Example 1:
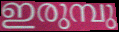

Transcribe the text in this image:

ഇരുമ്പു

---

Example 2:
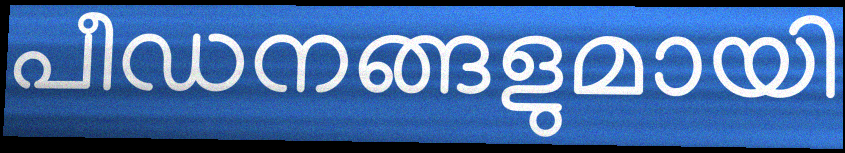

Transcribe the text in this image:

പീഡനങ്ങളുമായി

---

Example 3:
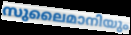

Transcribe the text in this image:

സുലൈമാനിയും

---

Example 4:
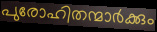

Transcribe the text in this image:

പുരോഹിതന്മാർക്കും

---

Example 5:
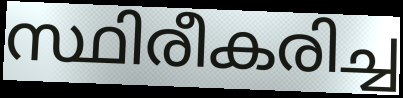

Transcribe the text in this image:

സ്ഥിരീകരിച്ച